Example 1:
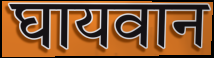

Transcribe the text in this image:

घायवान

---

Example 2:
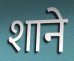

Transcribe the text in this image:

शाने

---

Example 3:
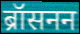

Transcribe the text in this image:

ब्रॉसनन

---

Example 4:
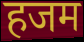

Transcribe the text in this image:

हजम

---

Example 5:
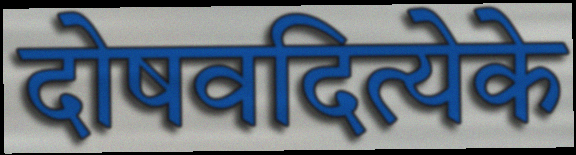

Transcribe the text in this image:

दोषवदित्येके